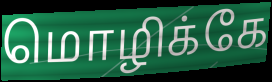
மொழிக்கே